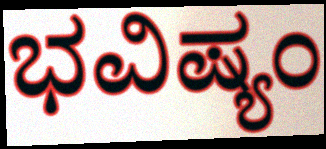
ಭವಿಷ್ಯಂ